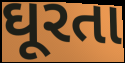
ઘૂરતા